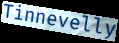
Tinnevelly